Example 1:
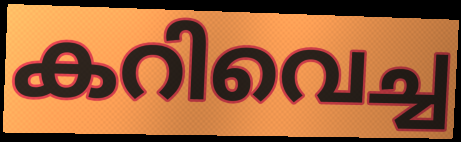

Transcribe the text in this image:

കറിവെച്ച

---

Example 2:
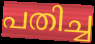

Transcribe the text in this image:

പതിച്ച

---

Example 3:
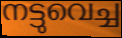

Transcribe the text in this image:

നട്ടുവെച്ച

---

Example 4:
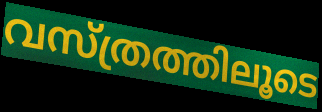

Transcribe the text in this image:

വസ്ത്രത്തിലൂടെ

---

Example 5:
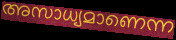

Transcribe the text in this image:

അസാധ്യമാണെന്ന